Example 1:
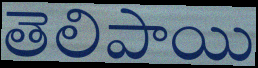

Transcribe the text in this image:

తెలిపాయి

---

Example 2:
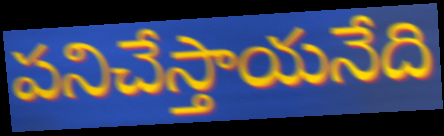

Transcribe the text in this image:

పనిచేస్తాయనేది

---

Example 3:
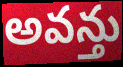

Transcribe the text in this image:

అవన్తు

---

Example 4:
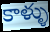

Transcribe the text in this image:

కాళ్ళు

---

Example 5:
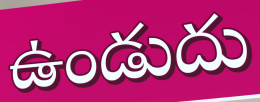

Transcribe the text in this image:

ఉండుదు